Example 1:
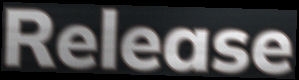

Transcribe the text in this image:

Release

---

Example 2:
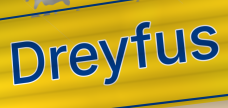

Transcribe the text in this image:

Dreyfus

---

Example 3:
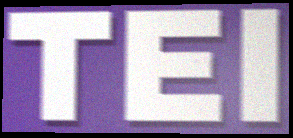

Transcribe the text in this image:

TEI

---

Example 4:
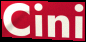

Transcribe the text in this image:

Cini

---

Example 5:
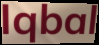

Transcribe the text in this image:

Iqbal